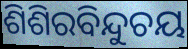
ଶିଶିରବିନ୍ଦୁଚୟ